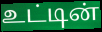
உட்டின்